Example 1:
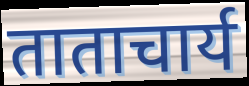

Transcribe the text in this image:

ताताचार्य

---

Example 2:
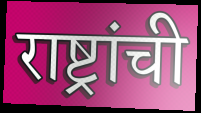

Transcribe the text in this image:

राष्ट्रांची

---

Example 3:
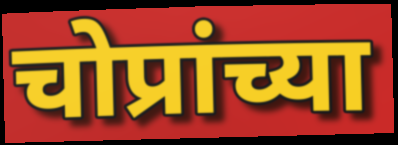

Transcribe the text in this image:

चोप्रांच्या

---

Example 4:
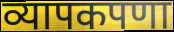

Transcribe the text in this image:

व्यापकपणा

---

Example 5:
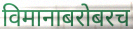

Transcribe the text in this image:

विमानाबरोबरच